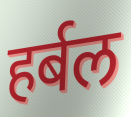
हर्बल